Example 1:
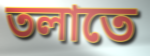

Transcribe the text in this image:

তলাতে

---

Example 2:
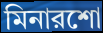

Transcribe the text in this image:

মিনারশো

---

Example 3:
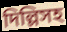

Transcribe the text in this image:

দিল্লিসহ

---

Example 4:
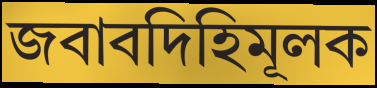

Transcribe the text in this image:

জবাবদিহিমূলক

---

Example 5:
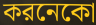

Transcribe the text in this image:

করনেকো